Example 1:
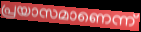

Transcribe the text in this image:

പ്രയാസമാണെന്ന്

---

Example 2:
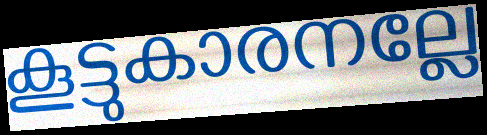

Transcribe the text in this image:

കൂട്ടുകാരനല്ലേ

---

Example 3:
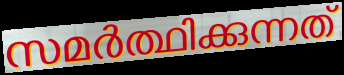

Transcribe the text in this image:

സമർത്ഥിക്കുന്നത്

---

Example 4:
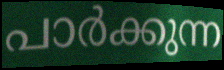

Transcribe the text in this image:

പാർക്കുന്ന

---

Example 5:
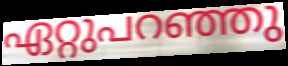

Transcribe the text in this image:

ഏറ്റുപറഞ്ഞു